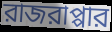
রাজরাপ্পার